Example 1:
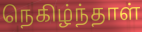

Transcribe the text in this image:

நெகிழ்ந்தாள்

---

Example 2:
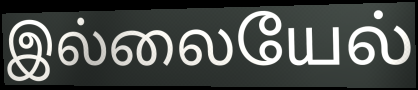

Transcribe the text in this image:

இல்லையேல்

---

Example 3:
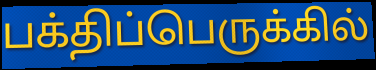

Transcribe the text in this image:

பக்திப்பெருக்கில்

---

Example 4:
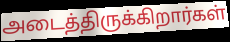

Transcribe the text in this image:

அடைத்திருக்கிறார்கள்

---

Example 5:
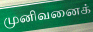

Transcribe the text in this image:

முனிவனைக்